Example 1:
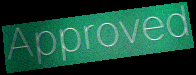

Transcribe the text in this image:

Approved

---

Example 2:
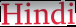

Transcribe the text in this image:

Hindi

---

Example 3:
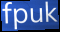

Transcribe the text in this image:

fpuk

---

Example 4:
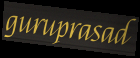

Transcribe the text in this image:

guruprasad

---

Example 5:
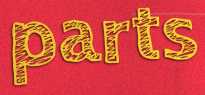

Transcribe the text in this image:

parts